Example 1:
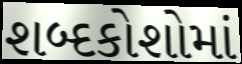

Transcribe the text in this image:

શબ્દકોશોમાં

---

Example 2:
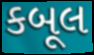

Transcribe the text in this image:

કબૂલ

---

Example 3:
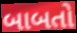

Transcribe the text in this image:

બાબતો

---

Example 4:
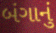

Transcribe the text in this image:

બંગાનું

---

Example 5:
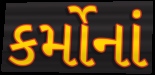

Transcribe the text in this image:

કર્મોનાં